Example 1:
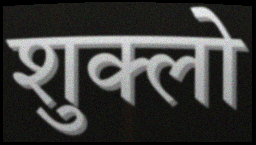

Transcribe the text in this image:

शुक्लो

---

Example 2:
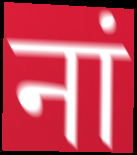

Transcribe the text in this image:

नां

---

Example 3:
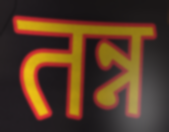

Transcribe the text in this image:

तन्न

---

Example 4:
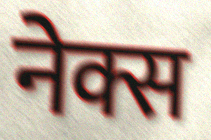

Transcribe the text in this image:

नेक्स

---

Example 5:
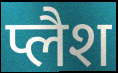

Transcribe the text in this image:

प्लैश